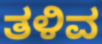
ತಳಿವ